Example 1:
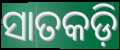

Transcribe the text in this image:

ସାତକଡ଼ି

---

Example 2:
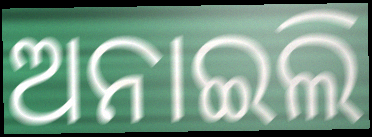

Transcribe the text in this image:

ଅନାଇଲି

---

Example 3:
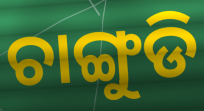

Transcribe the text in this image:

ଚାଙ୍ଗୁଡି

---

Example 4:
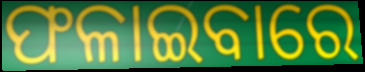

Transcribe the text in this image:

ଫଳାଇବାରେ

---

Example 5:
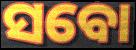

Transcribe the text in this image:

ସବୋ